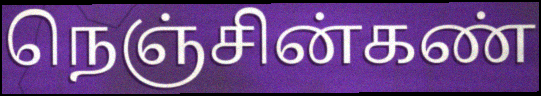
நெஞ்சின்கண்